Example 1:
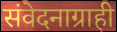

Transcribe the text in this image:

संवेदनाग्राही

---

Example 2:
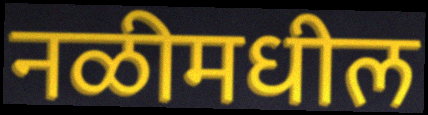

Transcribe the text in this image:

नळीमधील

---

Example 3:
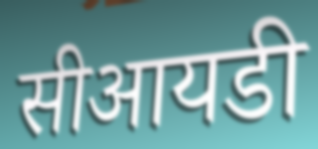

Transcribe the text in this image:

सीआयडी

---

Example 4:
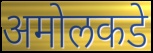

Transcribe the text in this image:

अमोलकडे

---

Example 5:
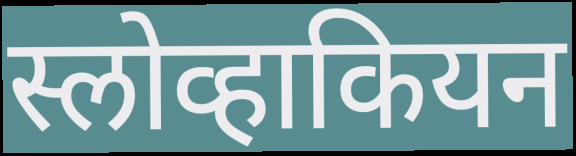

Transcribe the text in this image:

स्लोव्हाकियन